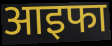
आइफा